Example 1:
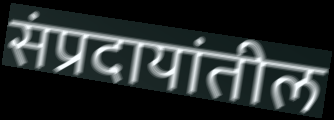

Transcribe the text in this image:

संप्रदायांतील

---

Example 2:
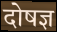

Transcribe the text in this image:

दोषज्ञ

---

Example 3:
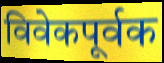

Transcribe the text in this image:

विवेकपूर्वक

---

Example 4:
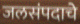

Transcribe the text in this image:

जलसंपदाचे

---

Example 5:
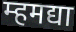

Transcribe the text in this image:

म्हमद्या